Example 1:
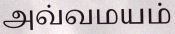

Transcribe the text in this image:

அவ்வமயம்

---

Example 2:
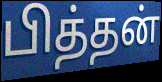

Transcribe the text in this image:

பித்தன்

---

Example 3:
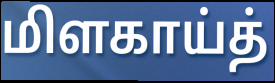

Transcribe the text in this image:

மிளகாய்த்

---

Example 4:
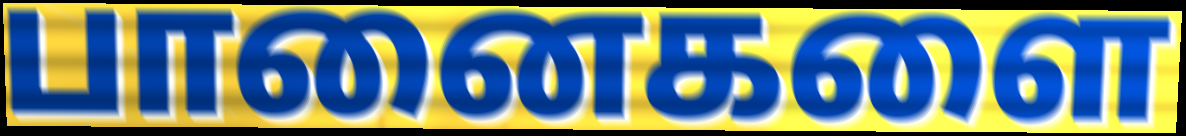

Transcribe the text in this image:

பானைகளை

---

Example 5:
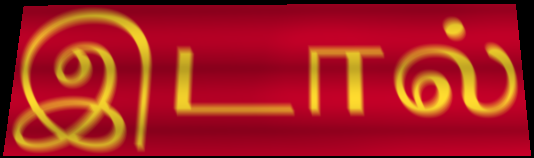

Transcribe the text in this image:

இடால்